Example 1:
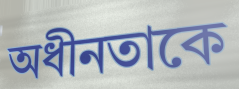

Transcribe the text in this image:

অধীনতাকে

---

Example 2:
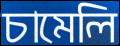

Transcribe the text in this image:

চামেলি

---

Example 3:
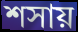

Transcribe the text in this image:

শসায়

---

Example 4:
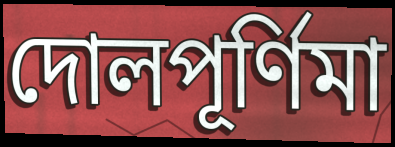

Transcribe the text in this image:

দোলপূর্ণিমা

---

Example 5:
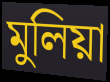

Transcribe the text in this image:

মুলিয়া